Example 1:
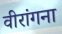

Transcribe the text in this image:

वीरांगना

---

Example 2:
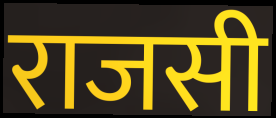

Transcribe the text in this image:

राजसी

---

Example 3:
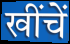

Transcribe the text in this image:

खींचें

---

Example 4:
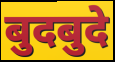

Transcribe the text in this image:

बुदबुदे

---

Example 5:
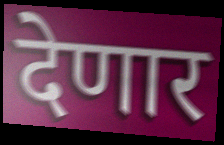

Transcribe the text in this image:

देणार